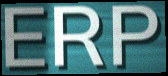
ERP